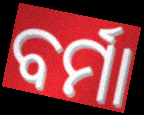
ବର୍ମା